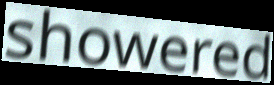
showered